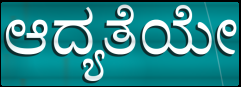
ಆದ್ಯತೆಯೇ